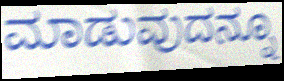
ಮಾಡುವುದನ್ನೂ